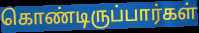
கொண்டிருப்பார்கள்